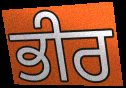
ਭੀਰ